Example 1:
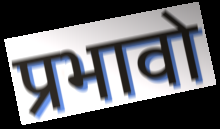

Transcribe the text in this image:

प्रभावो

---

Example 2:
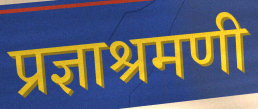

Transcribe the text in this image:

प्रज्ञाश्रमणी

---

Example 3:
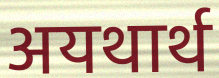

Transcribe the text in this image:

अयथार्थ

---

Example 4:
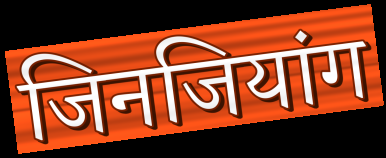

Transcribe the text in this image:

जिनजियांग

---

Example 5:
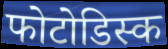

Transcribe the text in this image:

फोटोडिस्क